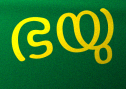
ഭയു